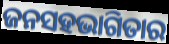
ଜନସହଭାଗିତାର